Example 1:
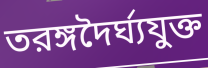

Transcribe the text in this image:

তরঙ্গদৈর্ঘ্যযুক্ত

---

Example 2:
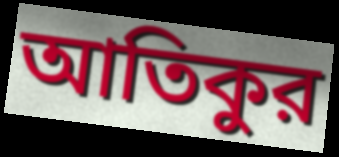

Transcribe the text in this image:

আতিকুর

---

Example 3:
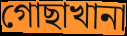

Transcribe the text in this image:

গোছাখানা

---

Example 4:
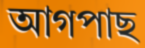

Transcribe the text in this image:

আগপাছ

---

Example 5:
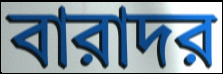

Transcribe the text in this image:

বারাদর